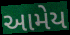
આમેય